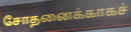
சோதனைக்காகச்